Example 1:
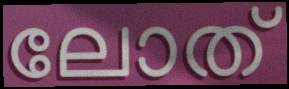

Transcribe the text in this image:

ലോത്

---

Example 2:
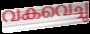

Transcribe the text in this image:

വകവെച്ചു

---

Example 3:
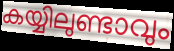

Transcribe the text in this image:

കയ്യിലുണ്ടാവും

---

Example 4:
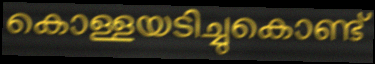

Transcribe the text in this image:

കൊള്ളയടിച്ചുകൊണ്ട്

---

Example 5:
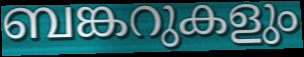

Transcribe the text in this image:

ബങ്കറുകളും